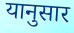
यानुसार